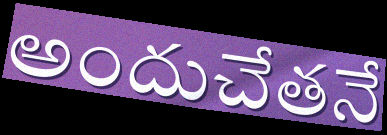
అందుచేతనే